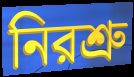
নিরশ্রু